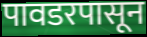
पावडरपासून